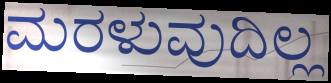
ಮರಳುವುದಿಲ್ಲ